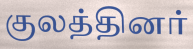
குலத்தினர்